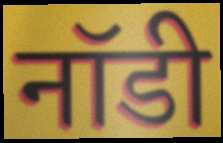
नॉडी